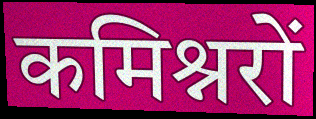
कमिश्नरों